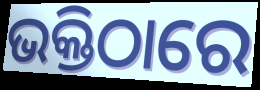
ଭକ୍ତିଠାରେ